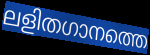
ലളിതഗാനത്തെ